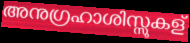
അനുഗ്രഹാശിസ്സുകള്